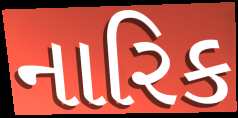
નારિક